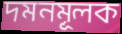
দমনমূলক